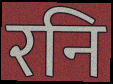
रनि